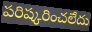
పరిష్కరించలేదు